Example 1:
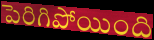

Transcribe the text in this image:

పెరిగిపోయింది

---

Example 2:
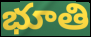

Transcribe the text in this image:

భూతి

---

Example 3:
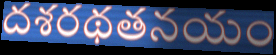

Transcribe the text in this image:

దశరథతనయం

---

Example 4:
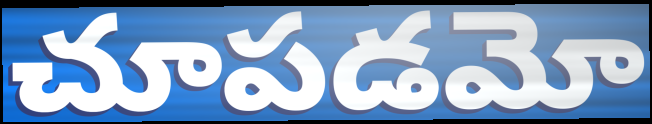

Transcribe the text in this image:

చూపడమో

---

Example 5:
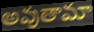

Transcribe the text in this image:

అవుతామా